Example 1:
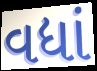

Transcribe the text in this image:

વદ્યાં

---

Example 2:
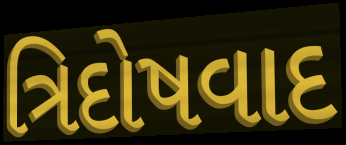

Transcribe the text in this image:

ત્રિદોષવાદ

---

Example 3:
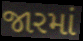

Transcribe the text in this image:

જારમાં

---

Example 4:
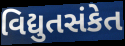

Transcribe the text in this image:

વિદ્યુતસંકેત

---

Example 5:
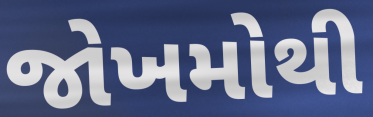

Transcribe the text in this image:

જોખમોથી